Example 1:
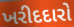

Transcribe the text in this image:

ખરીદદારો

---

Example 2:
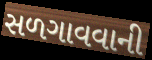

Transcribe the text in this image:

સળગાવવાની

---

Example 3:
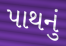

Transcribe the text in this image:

પાથનું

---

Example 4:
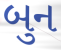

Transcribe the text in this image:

બુન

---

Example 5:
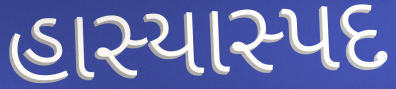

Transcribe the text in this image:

હાસ્યાસ્પદ